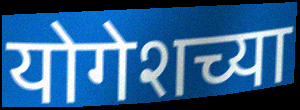
योगेशच्या